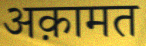
अक़ामत